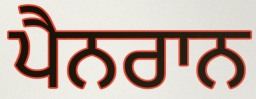
ਪੈਨਰਾਨ